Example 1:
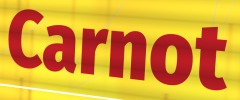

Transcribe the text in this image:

Carnot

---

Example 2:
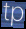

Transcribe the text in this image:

tp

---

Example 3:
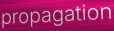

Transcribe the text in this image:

propagation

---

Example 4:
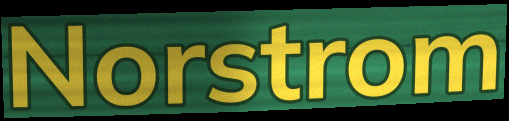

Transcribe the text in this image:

Norstrom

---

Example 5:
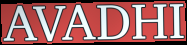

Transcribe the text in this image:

AVADHI